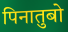
पिनातुबो